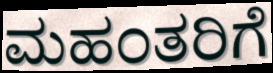
ಮಹಂತರಿಗೆ